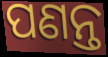
ପଣନ୍ତ